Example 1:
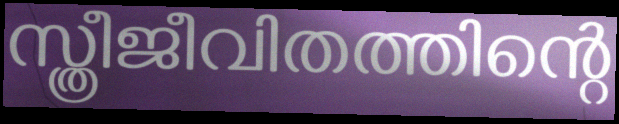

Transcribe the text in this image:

സ്ത്രീജീവിതത്തിന്റെ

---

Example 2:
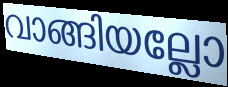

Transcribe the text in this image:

വാങ്ങിയല്ലോ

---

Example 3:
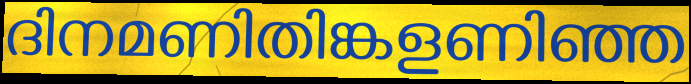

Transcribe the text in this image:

ദിനമണിതിങ്കളണിഞ്ഞ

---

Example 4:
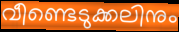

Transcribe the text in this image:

വീണ്ടെടുക്കലിനും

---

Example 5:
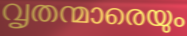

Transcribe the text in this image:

വൃതന്മാരെയും